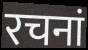
रचनां